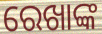
ରେଖାଙ୍କ